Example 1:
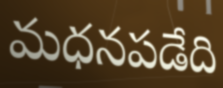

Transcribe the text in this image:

మధనపడేది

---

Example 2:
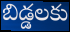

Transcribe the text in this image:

బిడ్డలకు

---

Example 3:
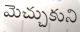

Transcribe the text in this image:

మెచ్చుకుని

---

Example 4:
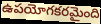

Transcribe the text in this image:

ఉపయోగకరమైంది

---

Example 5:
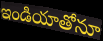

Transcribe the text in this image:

ఇండియాతోనూ